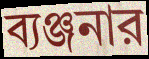
ব্যঞ্জনার